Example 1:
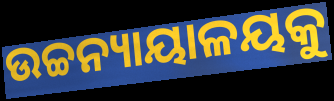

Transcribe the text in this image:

ଉଚ୍ଚନ୍ୟାୟାଳୟକୁ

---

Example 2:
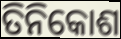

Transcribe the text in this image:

ତିନିକୋଶ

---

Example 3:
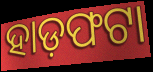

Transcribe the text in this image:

ହାଡ଼ଫଟା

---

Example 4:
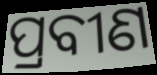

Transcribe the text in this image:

ପ୍ରବୀଣ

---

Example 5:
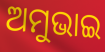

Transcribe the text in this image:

ଅମୁଭାଇ